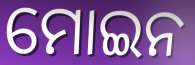
ମୋଇନ